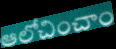
ఆలోచించాం